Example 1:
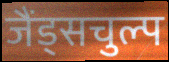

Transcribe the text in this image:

जैंड्सचुल्प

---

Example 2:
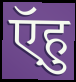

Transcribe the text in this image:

ऍहु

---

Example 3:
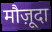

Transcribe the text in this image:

मौज़ूदा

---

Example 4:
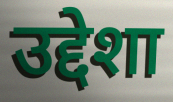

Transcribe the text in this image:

उद्देशा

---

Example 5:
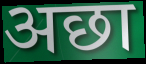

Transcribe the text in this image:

अछा